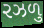
રઝળુ